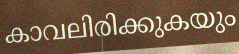
കാവലിരിക്കുകയും